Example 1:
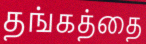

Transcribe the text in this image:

தங்கத்தை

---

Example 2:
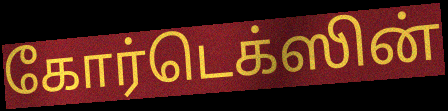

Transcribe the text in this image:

கோர்டெக்ஸின்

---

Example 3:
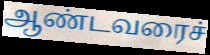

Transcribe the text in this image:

ஆண்டவரைச்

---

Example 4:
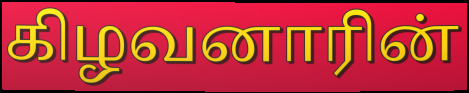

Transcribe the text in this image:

கிழவனாரின்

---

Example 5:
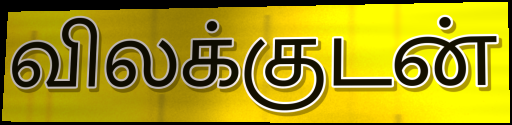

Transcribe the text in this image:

விலக்குடன்